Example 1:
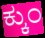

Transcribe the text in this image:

ಕ್ಕುಂ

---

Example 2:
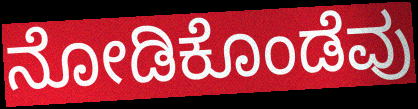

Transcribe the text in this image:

ನೋಡಿಕೊಂಡೆವು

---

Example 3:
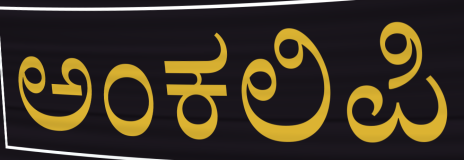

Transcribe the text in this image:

ಅಂಕಲಿಪಿ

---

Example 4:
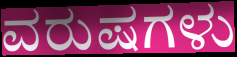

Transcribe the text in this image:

ವರುಷಗಳು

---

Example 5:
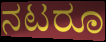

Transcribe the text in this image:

ನಟರೂ